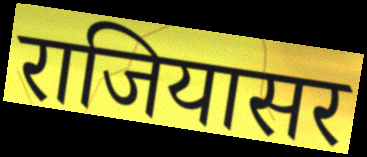
राजियासर